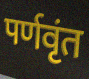
पर्णवृंत